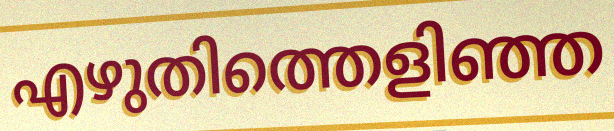
എഴുതിത്തെളിഞ്ഞ